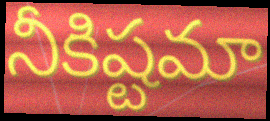
నీకిష్టమా